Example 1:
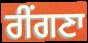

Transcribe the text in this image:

ਰੀਂਗਣਾ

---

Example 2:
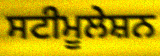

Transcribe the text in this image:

ਸਟੀਮੂਲੇਸ਼ਨ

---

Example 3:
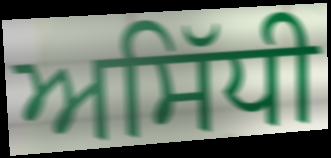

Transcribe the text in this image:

ਅਸਿੱਧੀ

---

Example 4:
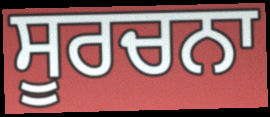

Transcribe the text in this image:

ਸੂਰਚਨਾ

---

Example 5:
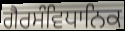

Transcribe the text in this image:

ਗੈਰਸੰਵਿਧਾਨਿਕ